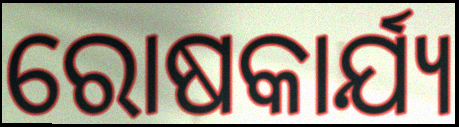
ରୋଷକାର୍ଯ୍ୟ